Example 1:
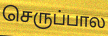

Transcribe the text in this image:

செருப்பால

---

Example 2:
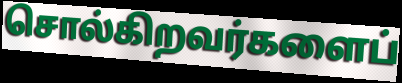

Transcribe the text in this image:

சொல்கிறவர்களைப்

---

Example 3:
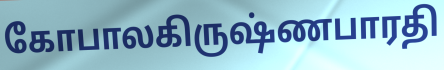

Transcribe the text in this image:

கோபாலகிருஷ்ணபாரதி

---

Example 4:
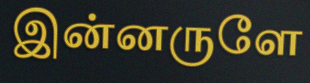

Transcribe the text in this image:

இன்னருளே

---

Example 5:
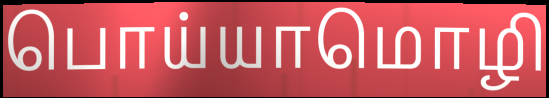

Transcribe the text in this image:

பொய்யாமொழி